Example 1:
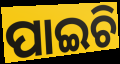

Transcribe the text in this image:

ପାଇଚି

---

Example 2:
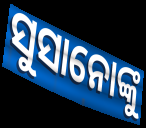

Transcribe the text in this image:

ସୁସାନୋଙ୍କୁ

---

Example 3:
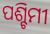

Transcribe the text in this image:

ପଶ୍ଚିମୀ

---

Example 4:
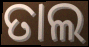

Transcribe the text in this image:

ତାଲ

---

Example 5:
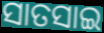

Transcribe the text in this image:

ସାତସାଇ